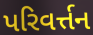
પરિવર્ત્તન